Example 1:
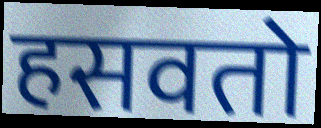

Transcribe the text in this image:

हसवतो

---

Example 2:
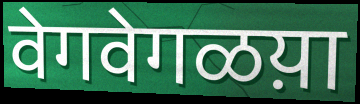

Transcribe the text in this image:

वेगवेगळय़ा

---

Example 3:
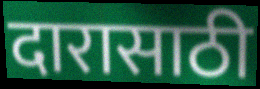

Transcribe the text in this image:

दारासाठी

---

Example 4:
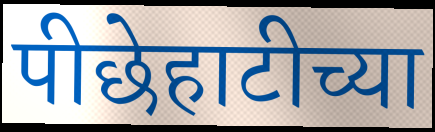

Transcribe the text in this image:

पीछेहाटीच्या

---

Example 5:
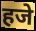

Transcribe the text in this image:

हजे